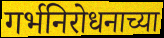
गर्भनिरोधनाच्या